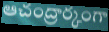
ఆచంద్రార్కంగా